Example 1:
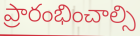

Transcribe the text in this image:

ప్రారంభించాల్సి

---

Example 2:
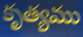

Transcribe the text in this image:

కృత్యము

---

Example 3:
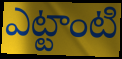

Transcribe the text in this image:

ఎట్టాంటి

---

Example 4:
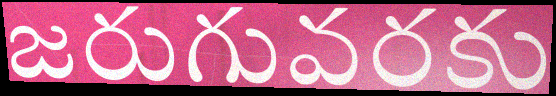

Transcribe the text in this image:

జరుగువరకు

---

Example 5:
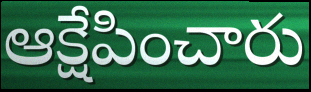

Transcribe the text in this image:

ఆక్షేపించారు